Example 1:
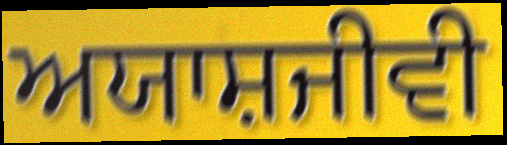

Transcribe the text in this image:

ਅਯਾਸ਼ਜੀਵੀ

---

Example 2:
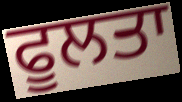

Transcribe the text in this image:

ਫੂਲਤਾ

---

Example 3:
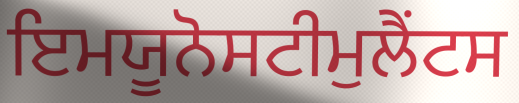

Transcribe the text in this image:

ਇਮਯੂਨੋਸਟੀਮੁਲੈਂਟਸ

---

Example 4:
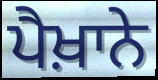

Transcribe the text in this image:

ਪੈਖ਼ਾਨੇ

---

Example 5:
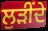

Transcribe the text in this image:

ਲੁੜੀਂਦੇ